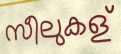
സീലുകള്